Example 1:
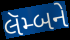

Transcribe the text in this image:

લૅમ્બને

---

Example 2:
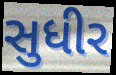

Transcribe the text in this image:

સુધીર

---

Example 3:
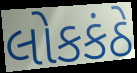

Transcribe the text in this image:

લોકકંઠે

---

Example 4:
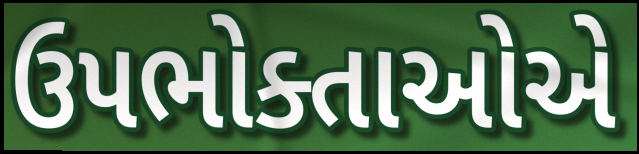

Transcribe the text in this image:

ઉપભોક્તાઓએ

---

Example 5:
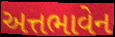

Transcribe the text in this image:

અત્તભાવેન